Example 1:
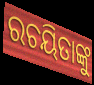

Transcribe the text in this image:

ରଚୟିତାଙ୍କୁ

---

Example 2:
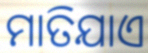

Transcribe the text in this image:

ମାତିଯାଏ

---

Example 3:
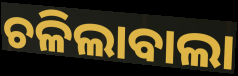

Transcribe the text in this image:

ଚଳିଲାବାଲା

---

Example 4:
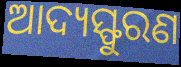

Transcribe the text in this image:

ଆଦ୍ୟସ୍ଫୁରଣ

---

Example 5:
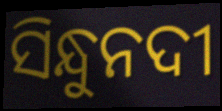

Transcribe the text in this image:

ସିନ୍ଧୁନଦୀ